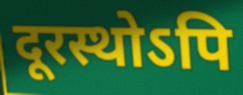
दूरस्थोऽपि